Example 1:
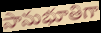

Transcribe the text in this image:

సానుభూతిగా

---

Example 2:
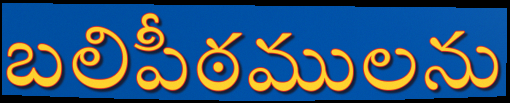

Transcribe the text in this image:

బలిపీఠములను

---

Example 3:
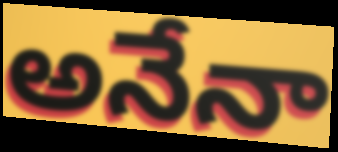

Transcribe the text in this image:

అనేనా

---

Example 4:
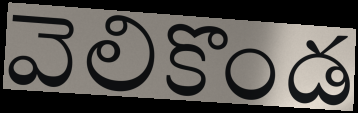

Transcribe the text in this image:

వెలికొండ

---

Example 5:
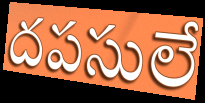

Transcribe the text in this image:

దపసులే